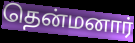
தென்மனார்